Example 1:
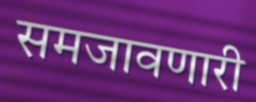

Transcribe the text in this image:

समजावणारी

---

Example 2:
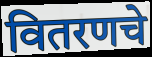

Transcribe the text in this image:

वितरणचे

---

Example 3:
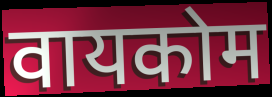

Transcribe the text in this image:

वायकोम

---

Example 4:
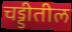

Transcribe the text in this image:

चड्डीतील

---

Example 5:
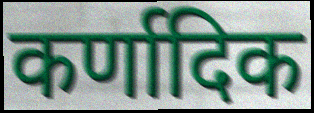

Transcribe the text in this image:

कर्णादिक